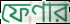
ফেণার